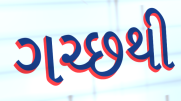
ગચ્છથી